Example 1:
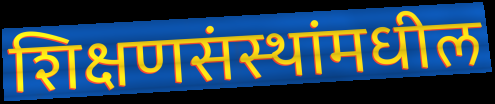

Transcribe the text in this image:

शिक्षणसंस्थांमधील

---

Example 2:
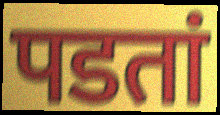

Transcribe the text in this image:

पडतां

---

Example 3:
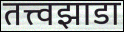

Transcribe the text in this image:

तत्त्वझाडा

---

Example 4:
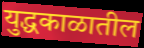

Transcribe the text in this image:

युद्धकाळातील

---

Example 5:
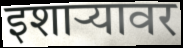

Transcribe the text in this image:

इशार्‍यावर